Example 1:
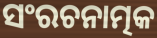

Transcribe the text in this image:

ସଂରଚନାତ୍ମକ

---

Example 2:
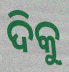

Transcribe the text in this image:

ଦିକୁ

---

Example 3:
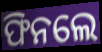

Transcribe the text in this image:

ଫିନଲେ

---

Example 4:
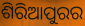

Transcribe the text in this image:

ଶିରିଆପୁରର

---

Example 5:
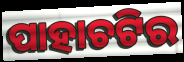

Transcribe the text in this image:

ପାହାଚଟିର